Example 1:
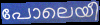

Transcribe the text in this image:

പോലെയീ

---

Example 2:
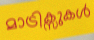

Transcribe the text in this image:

മാട്രിക്സുകൾ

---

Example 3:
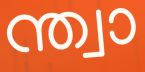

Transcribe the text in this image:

ന്ത്വാ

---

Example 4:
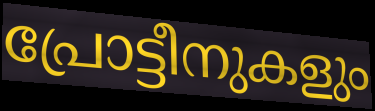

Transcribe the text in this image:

പ്രോട്ടീനുകളും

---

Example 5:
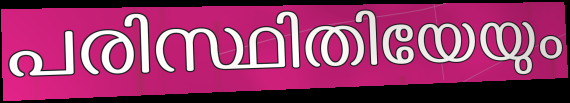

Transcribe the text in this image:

പരിസ്ഥിതിയേയും